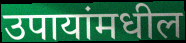
उपायांमधील